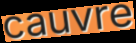
cauvre